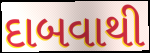
દાબવાથી